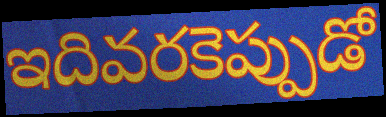
ఇదివరకెప్పుడో